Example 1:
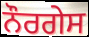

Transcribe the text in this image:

ਨੌਰਗੇਸ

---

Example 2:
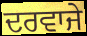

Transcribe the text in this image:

ਦਰਵਾਜੇ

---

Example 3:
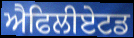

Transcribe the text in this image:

ਐਫਿਲੀਏਟਡ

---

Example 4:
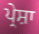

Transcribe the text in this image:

ਪ੍ਰੇਸ਼ਾ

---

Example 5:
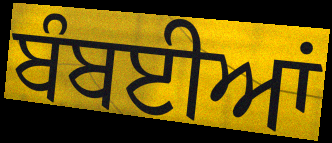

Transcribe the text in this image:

ਬੰਬਈਆਂ